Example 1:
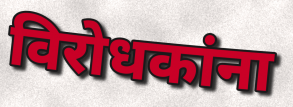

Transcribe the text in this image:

विरोधकांना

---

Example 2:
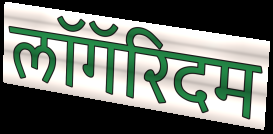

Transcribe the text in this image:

लॉगॅरिदम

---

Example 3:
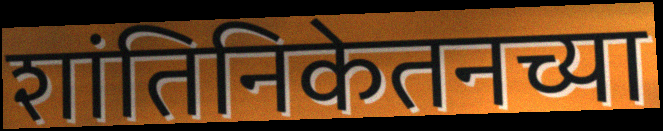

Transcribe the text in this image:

शांतिनिकेतनच्या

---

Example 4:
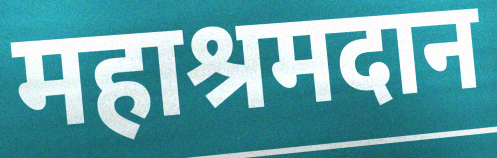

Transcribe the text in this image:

महाश्रमदान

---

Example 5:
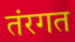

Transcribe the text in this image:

तंरगत